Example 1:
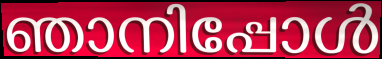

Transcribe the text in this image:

ഞാനിപ്പോൾ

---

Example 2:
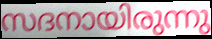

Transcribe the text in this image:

സദനായിരുന്നു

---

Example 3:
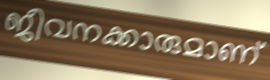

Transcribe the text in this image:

ജീവനക്കാരുമാണ്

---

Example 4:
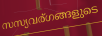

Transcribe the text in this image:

സസ്യവര്ഗങ്ങളുടെ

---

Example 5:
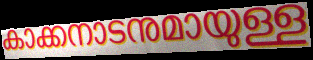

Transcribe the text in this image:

കാക്കനാടനുമായുള്ള